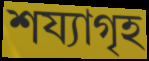
শয্যাগৃহ